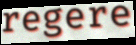
regere